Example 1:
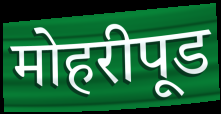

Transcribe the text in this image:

मोहरीपूड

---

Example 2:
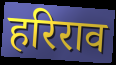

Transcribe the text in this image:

हरिराव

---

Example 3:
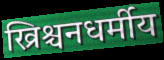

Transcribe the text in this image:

ख्रिश्चनधर्मीय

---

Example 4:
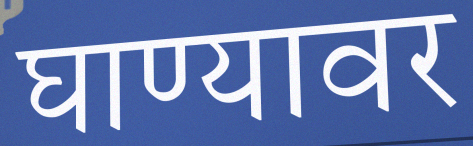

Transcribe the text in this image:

घाण्यावर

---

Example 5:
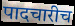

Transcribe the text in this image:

पादचारीच